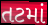
તટમાં